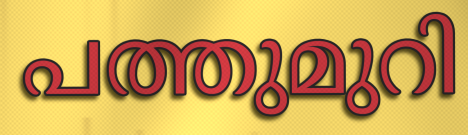
പത്തുമുറി